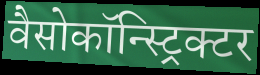
वैसोकॉन्स्ट्रिक्टर